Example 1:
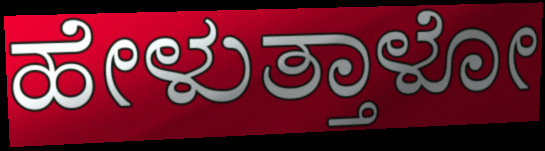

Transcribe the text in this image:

ಹೇಳುತ್ತಾಳೋ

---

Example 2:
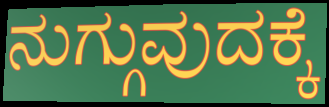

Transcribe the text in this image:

ನುಗ್ಗುವುದಕ್ಕೆ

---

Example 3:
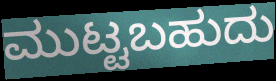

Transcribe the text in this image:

ಮುಟ್ಟಬಹುದು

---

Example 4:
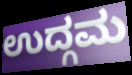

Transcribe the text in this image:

ಉದ್ಗಮ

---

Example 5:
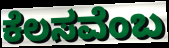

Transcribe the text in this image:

ಕೆಲಸವೆಂಬ